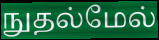
நுதல்மேல்